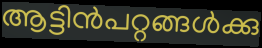
ആട്ടിൻപറ്റങ്ങൾക്കു